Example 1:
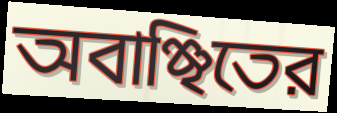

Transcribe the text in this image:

অবাঞ্ছিতের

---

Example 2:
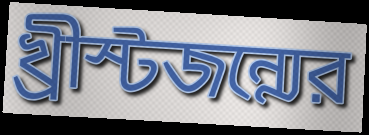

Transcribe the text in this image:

খ্রীস্টজন্মের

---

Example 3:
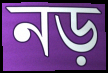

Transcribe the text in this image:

নড়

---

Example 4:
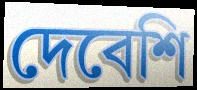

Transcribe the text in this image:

দেবেশি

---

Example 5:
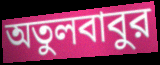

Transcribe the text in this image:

অতুলবাবুর